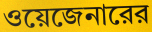
ওয়েজেনারের